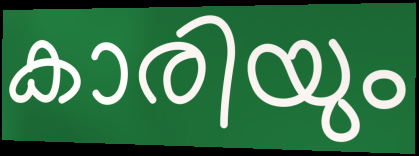
കാരിയും